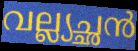
വല്ല്യച്ഛൻ